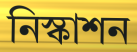
নিস্কাশন